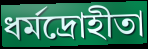
ধর্মদ্রোহীতা